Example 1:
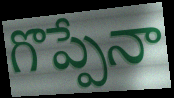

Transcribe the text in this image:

గొప్పేనా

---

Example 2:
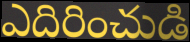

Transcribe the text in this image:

ఎదిరించుడి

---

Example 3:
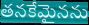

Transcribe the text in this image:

తనకేమైనను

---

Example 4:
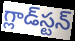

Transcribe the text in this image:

గ్లాడ్‌స్టన్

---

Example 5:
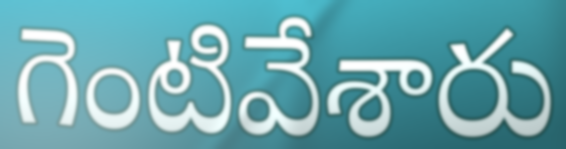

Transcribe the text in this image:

గెంటివేశారు